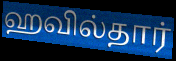
ஹவில்தார்